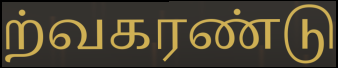
ற்வகரண்டு